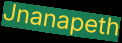
Jnanapeth